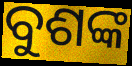
ବୁଶଙ୍କ